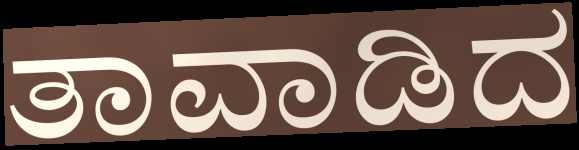
ತಾವಾಡಿದ